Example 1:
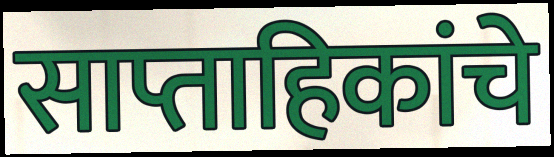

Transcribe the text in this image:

साप्ताहिकांचे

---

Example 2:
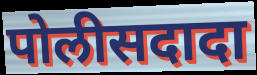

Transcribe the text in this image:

पोलीसदादा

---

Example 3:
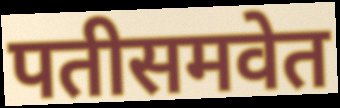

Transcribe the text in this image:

पतीसमवेत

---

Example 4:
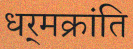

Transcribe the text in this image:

धर्मक्रांति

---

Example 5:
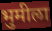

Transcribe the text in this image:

भुमीला